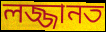
লজ্জানত